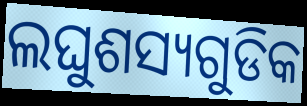
ଲଘୁଶସ୍ୟଗୁଡିକ